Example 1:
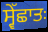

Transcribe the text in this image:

ਸ੍ਵੇੱਛਾਤਃ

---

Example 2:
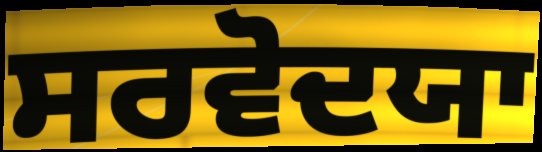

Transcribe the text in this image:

ਸਰਵੋਦਯਾ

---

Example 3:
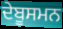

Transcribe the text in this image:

ਦੇਬੂਸਮਨ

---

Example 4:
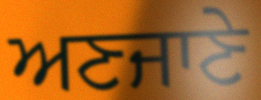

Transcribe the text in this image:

ਅਣਜਾਣੇ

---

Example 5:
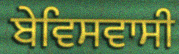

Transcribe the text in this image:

ਬੇਵਿਸਵਾਸੀ